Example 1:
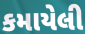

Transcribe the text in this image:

કમાયેલી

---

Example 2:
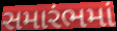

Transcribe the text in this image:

સમારંભમાં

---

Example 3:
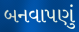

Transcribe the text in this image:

બનવાપણું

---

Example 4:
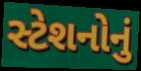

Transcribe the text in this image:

સ્ટેશનોનું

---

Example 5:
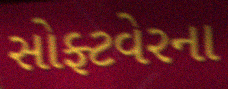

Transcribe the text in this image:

સોફ્ટવેરના